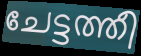
ചേട്ടത്തീ